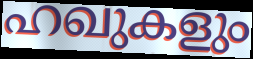
ഹഖുകളും